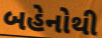
બહેનોથી